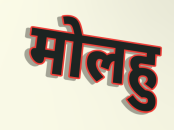
मोलहु